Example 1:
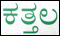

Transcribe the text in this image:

ಕತ್ತಲ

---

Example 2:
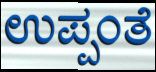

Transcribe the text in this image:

ಉಪ್ಪಂತೆ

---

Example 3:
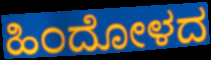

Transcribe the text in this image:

ಹಿಂದೋಳದ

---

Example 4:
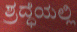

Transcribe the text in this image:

ಶ್ರದ್ಧೆಯಲ್ಲಿ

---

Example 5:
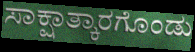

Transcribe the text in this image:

ಸಾಕ್ಷಾತ್ಕಾರಗೊಂಡು